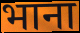
भाना